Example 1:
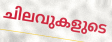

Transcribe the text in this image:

ചിലവുകളുടെ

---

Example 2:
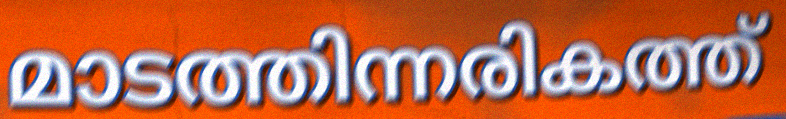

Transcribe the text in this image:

മാടത്തിന്നരികത്ത്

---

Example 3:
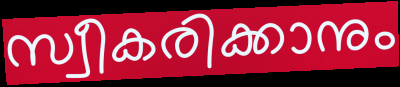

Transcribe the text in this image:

സ്വീകരിക്കാനും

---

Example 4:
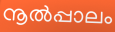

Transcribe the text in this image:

നൂൽപ്പാലം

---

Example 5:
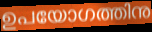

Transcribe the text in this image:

ഉപയോഗത്തിനു